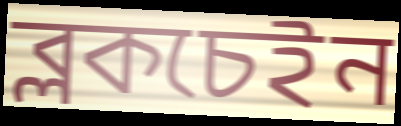
ব্লকচেইন